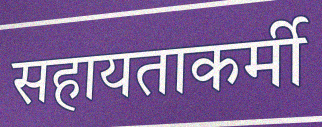
सहायताकर्मी